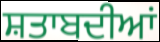
ਸ਼ਤਾਬਦੀਆਂ